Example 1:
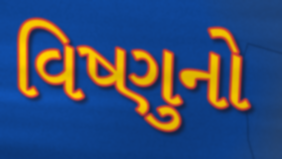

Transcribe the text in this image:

વિષ્ણુનો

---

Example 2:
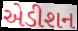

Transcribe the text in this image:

એડીશન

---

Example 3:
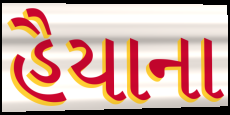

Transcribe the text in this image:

હૈયાના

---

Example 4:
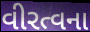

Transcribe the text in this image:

વીરત્વના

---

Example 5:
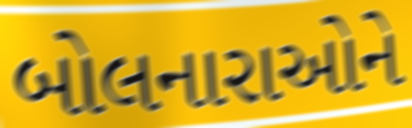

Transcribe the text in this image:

બોલનારાઓને